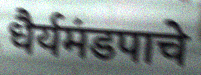
धैर्यमंडपाचे